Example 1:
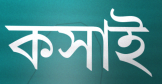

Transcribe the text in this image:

কসাই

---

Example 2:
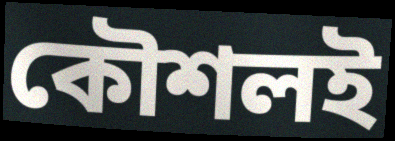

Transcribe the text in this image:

কৌশলই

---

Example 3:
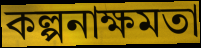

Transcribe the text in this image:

কল্পনাক্ষমতা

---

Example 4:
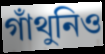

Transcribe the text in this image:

গাঁথুনিও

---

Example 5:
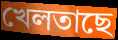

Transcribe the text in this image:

খেলতাছে